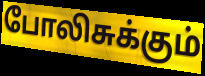
போலிசுக்கும்